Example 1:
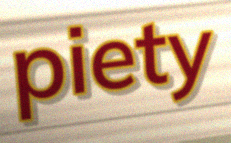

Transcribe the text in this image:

piety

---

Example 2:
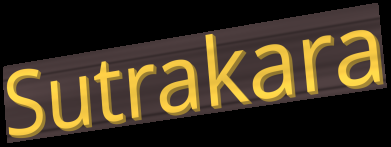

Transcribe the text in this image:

Sutrakara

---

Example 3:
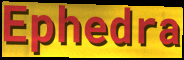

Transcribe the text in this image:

Ephedra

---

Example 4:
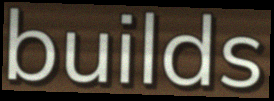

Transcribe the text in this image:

builds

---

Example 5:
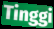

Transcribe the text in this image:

Tinggi